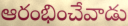
ఆరంభించేవాడు